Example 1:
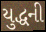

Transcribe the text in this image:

યુદ્ધની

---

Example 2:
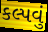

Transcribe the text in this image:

કલ્પવું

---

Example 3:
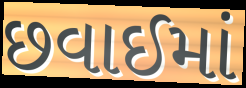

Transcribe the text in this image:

છવાઈમાં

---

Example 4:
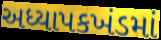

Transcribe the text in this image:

અધ્યાપકખંડમાં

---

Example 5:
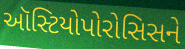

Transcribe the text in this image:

ઑસ્ટિયોપોરોસિસને